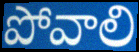
పోవాలి